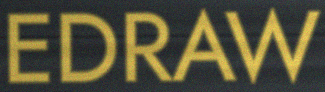
EDRAW